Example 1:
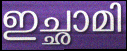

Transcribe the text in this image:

ഇച്ഛാമി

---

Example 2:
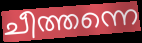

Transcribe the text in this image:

ചീത്തന്നെ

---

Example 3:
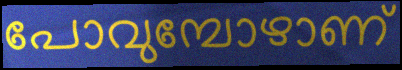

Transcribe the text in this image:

പോവുമ്പോഴാണ്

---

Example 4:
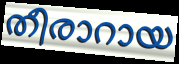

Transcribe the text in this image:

തീരാറായ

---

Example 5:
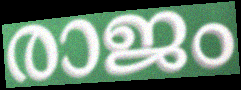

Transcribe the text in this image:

രാജം